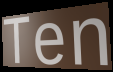
Ten